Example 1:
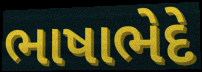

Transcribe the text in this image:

ભાષાભેદે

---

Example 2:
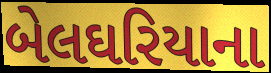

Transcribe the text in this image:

બેલઘરિયાના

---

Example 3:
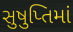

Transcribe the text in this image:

સુષુપ્તિમાં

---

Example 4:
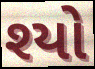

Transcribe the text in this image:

શ્યો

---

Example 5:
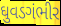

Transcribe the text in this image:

ઘુવડગંભીર